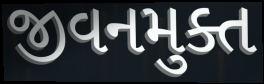
જીવનમુક્ત